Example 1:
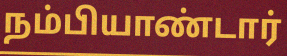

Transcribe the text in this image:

நம்பியாண்டார்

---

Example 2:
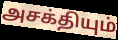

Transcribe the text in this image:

அசக்தியும்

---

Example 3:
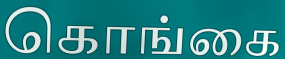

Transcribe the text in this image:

கொங்கை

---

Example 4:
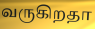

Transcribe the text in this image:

வருகிறதா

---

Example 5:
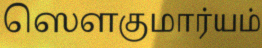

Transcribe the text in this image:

ஸௌகுமார்யம்